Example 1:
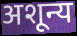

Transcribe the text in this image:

अशून्य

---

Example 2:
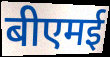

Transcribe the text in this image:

बीएमई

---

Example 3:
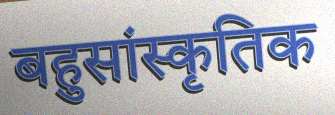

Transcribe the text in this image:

बहुसांस्कृतिक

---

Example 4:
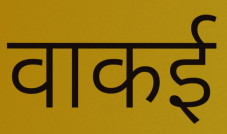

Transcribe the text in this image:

वाकई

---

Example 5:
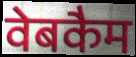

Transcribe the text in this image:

वेबकैम